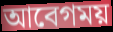
আবেগময়